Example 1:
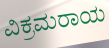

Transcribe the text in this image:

ವಿಕ್ರಮರಾಯ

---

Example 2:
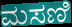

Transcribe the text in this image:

ಮಸಣಿ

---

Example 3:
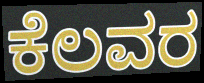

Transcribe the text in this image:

ಕೆಲವರ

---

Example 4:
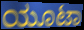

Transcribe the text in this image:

ಯೂಟಾ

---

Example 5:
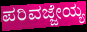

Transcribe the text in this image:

ಪರಿವಜ್ಜೇಯ್ಯ